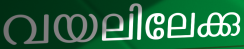
വയലിലേക്കു